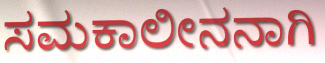
ಸಮಕಾಲೀನನಾಗಿ